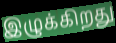
இழுக்கிறது